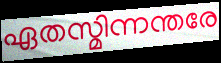
ഏതസ്മിന്നന്തരേ